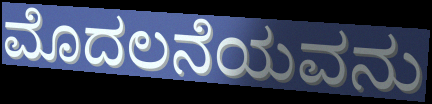
ಮೊದಲನೆಯವನು